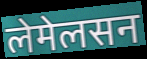
लेमेलसन